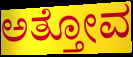
ಅತ್ತೋವ